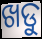
ଖଡୁ